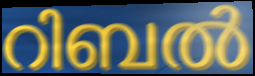
റിബൽ